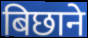
बिछाने